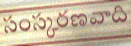
సంస్కరణవాది